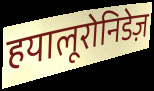
हयालूरोनिडेज़